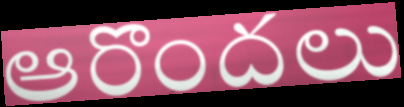
ఆరొందలు